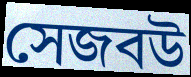
সেজবউ